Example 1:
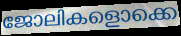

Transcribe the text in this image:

ജോലികളൊക്കെ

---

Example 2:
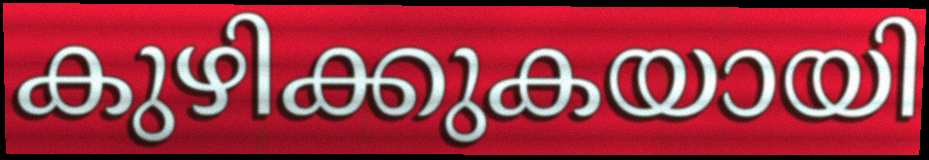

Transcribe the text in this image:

കുഴിക്കുകയായി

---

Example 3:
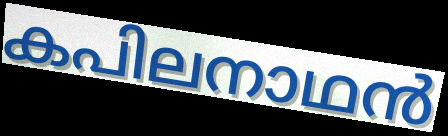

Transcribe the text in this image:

കപിലനാഥൻ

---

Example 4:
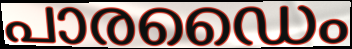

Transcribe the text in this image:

പാരഡൈം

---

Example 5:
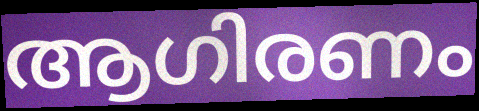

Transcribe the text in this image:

ആഗിരണം